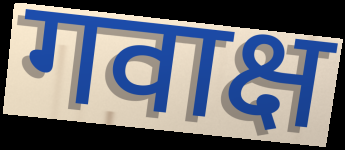
गवाक्ष